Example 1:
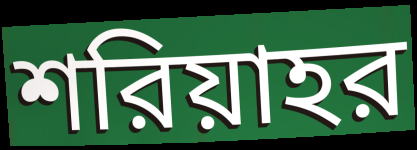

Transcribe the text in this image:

শরিয়াহর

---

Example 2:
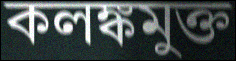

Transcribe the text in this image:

কলঙ্কমুক্ত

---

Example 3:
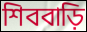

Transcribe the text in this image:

শিববাড়ি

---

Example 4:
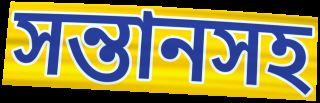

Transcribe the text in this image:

সন্তানসহ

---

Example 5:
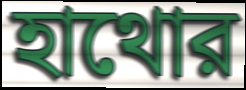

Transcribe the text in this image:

হাথোর